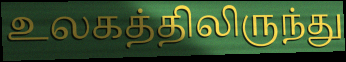
உலகத்திலிருந்து